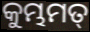
କୁମ୍ଭମତ୍